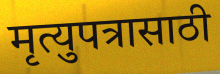
मृत्युपत्रासाठी